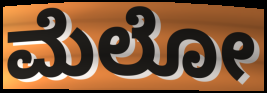
ಮೆಲೋ